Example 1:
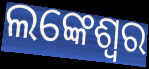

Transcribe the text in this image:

ଲଙ୍କେଶ୍ବର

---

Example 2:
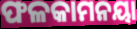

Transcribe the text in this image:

ଫଳକାମନୟା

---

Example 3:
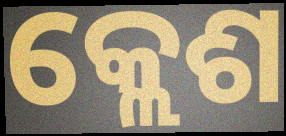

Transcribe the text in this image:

କ୍ଲେଶ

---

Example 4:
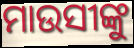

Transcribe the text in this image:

ମାଉସୀଙ୍କୁ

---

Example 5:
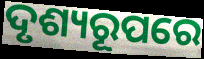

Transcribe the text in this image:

ଦୃଶ୍ୟରୂପରେ